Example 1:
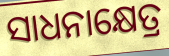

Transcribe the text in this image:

ସାଧନାକ୍ଷେତ୍ର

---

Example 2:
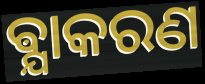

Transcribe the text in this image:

ଵ୍ଯାକରଣ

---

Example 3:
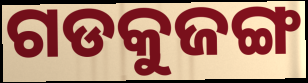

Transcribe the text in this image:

ଗଡକୁଜଙ୍ଗ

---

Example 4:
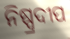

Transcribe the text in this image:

ନିଷ୍ପ୍ରଦୀପ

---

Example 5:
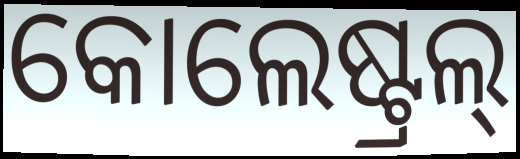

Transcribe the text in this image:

କୋଲେଷ୍ଟ୍ରଲ୍